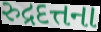
રુદ્રદત્તના